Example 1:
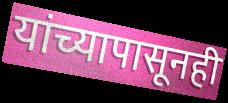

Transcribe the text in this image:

यांच्यापासूनही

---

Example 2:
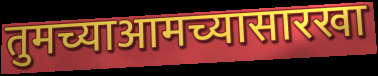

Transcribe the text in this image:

तुमच्याआमच्यासारखा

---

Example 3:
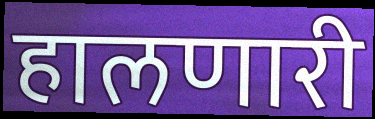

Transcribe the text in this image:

हालणारी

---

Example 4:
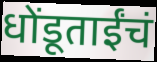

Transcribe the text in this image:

धोंडूताईंचं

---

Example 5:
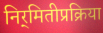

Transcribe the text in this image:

निर्मितीप्रक्रिया